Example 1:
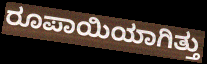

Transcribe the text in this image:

ರೂಪಾಯಿಯಾಗಿತ್ತು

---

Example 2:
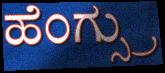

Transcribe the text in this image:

ಹೆಂಗ್ಸ್ರು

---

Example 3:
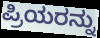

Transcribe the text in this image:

ಪ್ರಿಯರನ್ನು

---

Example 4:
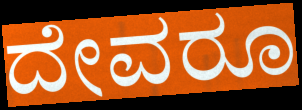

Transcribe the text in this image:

ದೇವರೂ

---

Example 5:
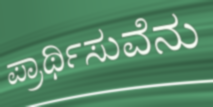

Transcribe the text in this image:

ಪ್ರಾರ್ಥಿಸುವೆನು